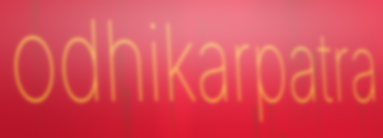
odhikarpatra